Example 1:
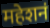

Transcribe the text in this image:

महेशनं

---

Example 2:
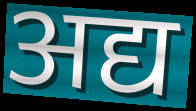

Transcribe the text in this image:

अद्य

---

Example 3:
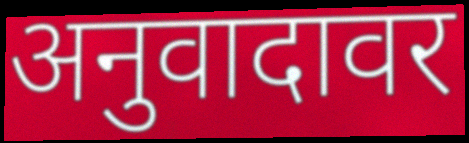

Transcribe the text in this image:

अनुवादावर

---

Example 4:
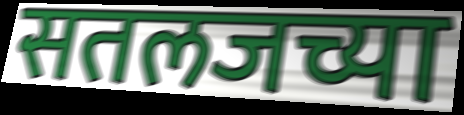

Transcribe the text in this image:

सतलजच्या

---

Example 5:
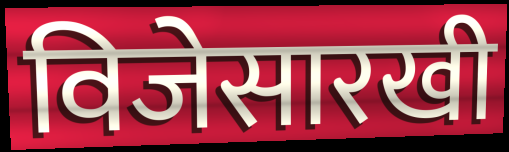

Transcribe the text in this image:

विजेसारखी